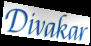
Divakar